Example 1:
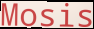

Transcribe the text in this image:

Mosis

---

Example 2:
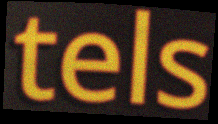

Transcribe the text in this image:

tels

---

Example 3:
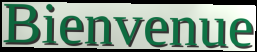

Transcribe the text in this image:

Bienvenue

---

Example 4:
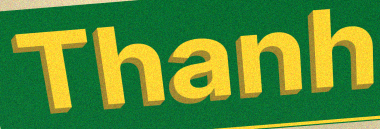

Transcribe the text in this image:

Thanh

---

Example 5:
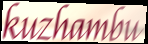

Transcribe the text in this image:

kuzhambu